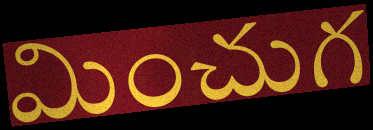
మించుగ